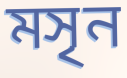
মসৃন